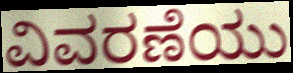
ವಿವರಣೆಯು